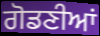
ਗੋਡਣੀਆਂ